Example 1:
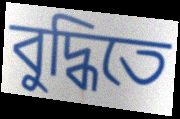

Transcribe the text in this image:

বুদ্ধিতে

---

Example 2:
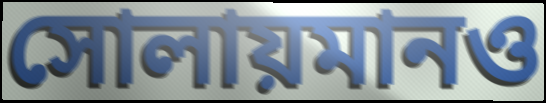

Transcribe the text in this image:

সোলায়মানও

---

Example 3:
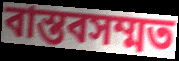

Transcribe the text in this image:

বাস্তবসম্মত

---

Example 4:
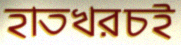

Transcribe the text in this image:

হাতখরচই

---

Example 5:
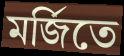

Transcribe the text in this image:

মর্জিতে